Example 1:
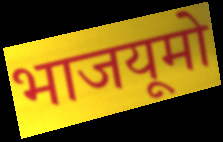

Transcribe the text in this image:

भाजयूमो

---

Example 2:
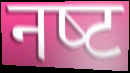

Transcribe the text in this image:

नष्‍ट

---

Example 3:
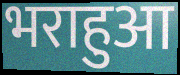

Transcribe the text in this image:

भराहुआ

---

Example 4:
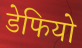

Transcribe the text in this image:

डेफियो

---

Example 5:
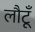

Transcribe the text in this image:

लौटूँ